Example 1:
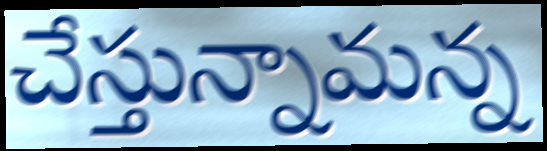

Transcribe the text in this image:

చేస్తున్నామన్న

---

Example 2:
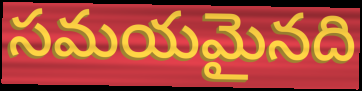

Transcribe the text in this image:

సమయమైనది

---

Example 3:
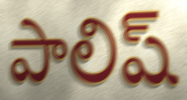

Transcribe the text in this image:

పాలిష్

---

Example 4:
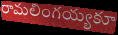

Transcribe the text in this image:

రామలింగయ్యకూ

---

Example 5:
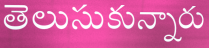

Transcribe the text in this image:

తెలుసుకున్నారు